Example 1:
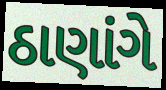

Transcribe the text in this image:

ઠાણાંગે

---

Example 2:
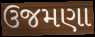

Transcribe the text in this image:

ઉજમણા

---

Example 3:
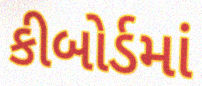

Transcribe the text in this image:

કીબોર્ડમાં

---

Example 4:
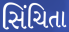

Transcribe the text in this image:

સિંચિતા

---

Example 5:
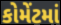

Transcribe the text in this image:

કોમેંટમાં